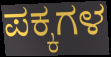
ಪಕ್ಕಗಳ